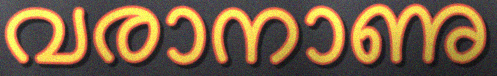
വരാനാണു